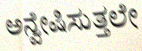
ಅನ್ವೇಷಿಸುತ್ತಲೇ